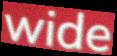
wide